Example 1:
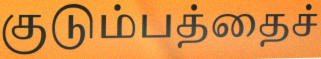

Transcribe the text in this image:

குடும்பத்தைச்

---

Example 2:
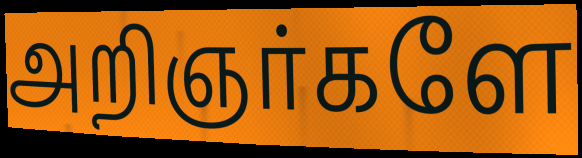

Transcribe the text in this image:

அறிஞர்களே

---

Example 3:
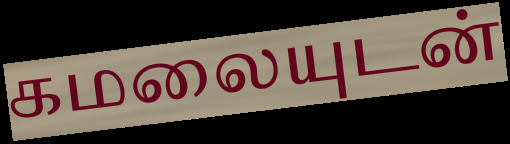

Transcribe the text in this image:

கமலையுடன்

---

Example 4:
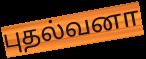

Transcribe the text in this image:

புதல்வனா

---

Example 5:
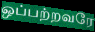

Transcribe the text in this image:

ஒப்பற்றவரே